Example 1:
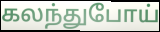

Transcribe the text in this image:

கலந்துபோய்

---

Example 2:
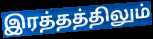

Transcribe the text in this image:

இரத்தத்திலும்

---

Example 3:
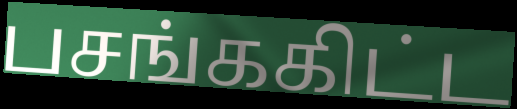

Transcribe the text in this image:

பசங்ககிட்ட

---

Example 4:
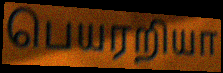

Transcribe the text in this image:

பெயரறியா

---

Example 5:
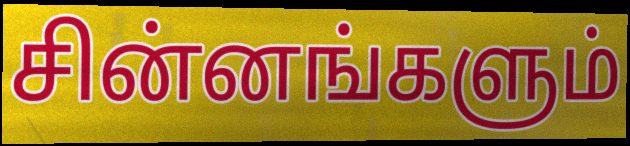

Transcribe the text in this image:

சின்னங்களும்